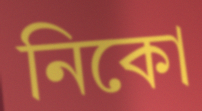
নিকো